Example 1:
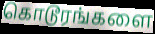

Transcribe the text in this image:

கொடூரங்களை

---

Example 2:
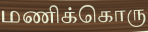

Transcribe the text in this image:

மணிக்கொரு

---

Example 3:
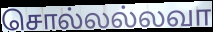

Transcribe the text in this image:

சொல்லல்லவா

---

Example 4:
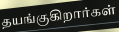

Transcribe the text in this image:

தயங்குகிறார்கள்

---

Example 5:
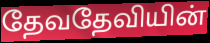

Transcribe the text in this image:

தேவதேவியின்